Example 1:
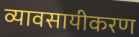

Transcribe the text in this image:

व्यावसायीकरण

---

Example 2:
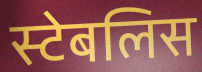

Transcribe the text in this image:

स्टेबलिस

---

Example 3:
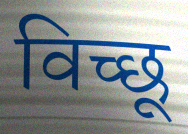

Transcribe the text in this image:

विच्छू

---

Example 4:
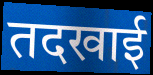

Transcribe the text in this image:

तदखाई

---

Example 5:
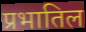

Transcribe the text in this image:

प्रभातिल